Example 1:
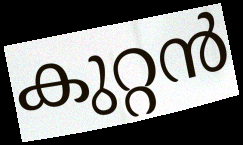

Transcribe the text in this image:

കുറ്റൻ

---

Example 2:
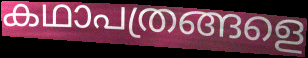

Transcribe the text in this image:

കഥാപത്രങ്ങളെ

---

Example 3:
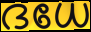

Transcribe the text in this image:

ദധേ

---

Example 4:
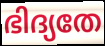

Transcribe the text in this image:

ഭിദ്യതേ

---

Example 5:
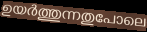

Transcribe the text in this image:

ഉയർത്തുന്നതുപോലെ